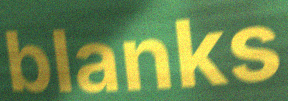
blanks